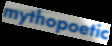
mythopoetic